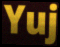
Yuj